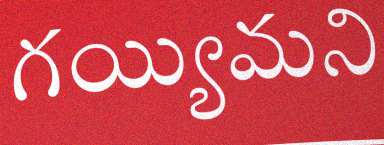
గయ్యిమని